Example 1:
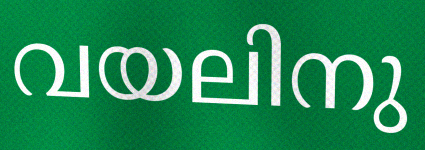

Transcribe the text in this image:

വയലിനു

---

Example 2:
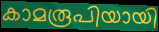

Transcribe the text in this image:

കാമരൂപിയായി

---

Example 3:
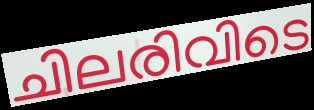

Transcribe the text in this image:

ചിലരിവിടെ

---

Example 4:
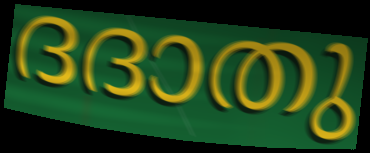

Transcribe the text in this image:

ദദാതു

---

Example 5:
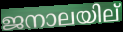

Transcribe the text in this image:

ജനാലയില്